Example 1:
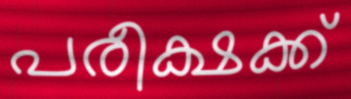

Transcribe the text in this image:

പരീക്ഷക്ക്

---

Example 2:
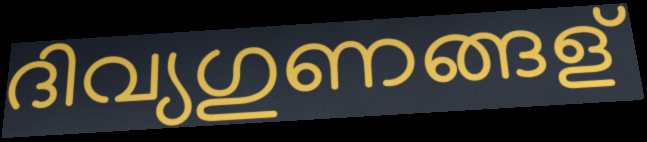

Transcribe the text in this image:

ദിവ്യഗുണങ്ങള്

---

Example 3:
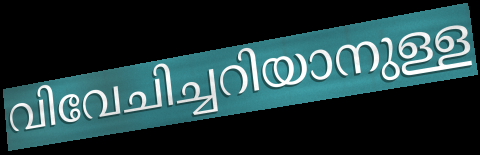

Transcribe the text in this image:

വിവേചിച്ചറിയാനുള്ള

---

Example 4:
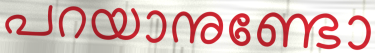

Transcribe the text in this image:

പറയാനുണ്ടോ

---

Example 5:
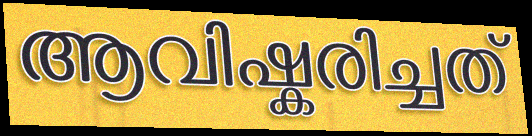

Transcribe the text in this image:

ആവിഷ്കരിച്ചത്